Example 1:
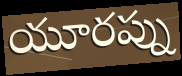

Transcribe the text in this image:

యూరప్ను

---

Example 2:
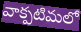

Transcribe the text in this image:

వాక్పటిమలో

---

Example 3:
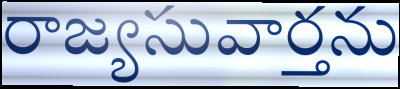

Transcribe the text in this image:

రాజ్యసువార్తను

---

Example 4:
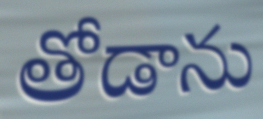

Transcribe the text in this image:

తోడాను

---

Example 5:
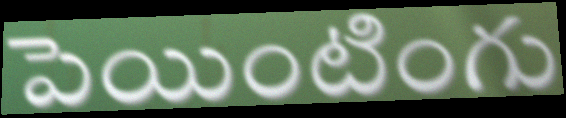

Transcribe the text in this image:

పెయింటింగు